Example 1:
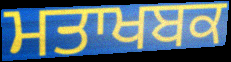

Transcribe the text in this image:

ਮਤਾਖਬਕ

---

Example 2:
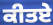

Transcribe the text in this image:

ਕੀਤਏ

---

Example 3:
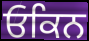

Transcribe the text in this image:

ਓਕਿਨ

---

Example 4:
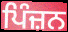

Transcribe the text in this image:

ਪਿੰਜ਼ਨ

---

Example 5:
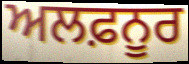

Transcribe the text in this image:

ਅਲਫ਼ਨੂਰ